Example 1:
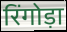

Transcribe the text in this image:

रिंगोड़ा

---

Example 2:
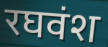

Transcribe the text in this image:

रघवंश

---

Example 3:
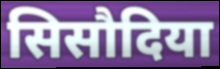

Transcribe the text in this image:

सिसौदिया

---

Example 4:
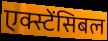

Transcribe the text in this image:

एक्स्टेंसिबल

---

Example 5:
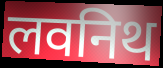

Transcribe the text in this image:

लवनिथ